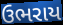
ઉભરાય